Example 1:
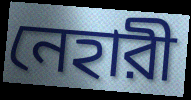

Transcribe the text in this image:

নেহারী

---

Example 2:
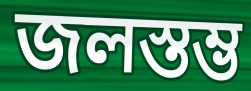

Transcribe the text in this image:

জলস্তম্ভ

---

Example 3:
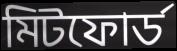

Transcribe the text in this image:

মিটফোর্ড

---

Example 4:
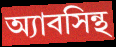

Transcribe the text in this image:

অ্যাবসিন্থ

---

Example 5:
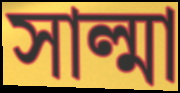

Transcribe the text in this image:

সাল্মা